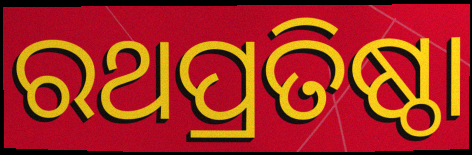
ରଥପ୍ରତିଷ୍ଠା